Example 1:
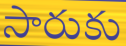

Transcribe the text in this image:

సారుకు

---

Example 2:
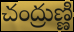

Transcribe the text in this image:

చంద్రుణ్ణి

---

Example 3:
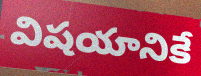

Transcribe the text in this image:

విషయానికే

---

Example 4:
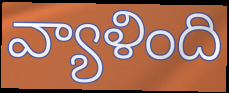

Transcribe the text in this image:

వ్యాళింది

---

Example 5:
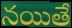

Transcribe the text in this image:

నయితే